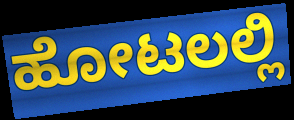
ಹೋಟಲಲ್ಲಿ